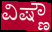
ವಿಷ್ಣೌ